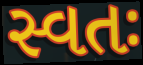
સ્વતઃ